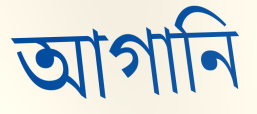
আগানি